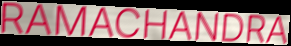
RAMACHANDRA